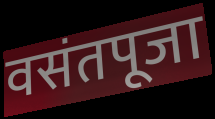
वसंतपूजा